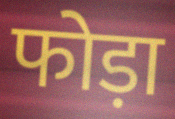
फोड़ा